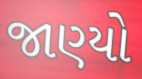
જાણ્યો